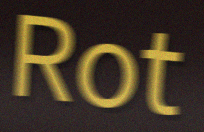
Rot